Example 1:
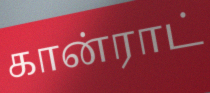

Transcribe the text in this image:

கான்ராட்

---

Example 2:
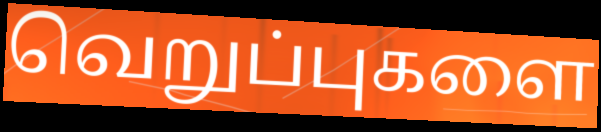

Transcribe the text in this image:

வெறுப்புகளை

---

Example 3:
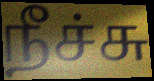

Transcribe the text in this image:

நீச்சு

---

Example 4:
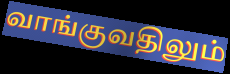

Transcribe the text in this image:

வாங்குவதிலும்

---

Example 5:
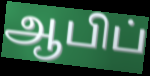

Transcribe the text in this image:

ஆபிப்